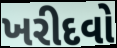
ખરીદવો